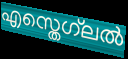
എസ്തെഗ്‌ലൽ